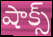
షాక్స్